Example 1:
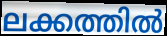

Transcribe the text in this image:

ലക്കത്തിൽ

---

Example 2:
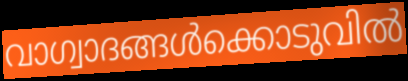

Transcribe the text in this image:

വാഗ്വാദങ്ങൾക്കൊടുവിൽ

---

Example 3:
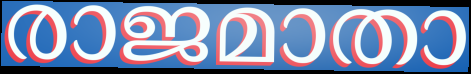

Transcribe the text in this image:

രാജമാതാ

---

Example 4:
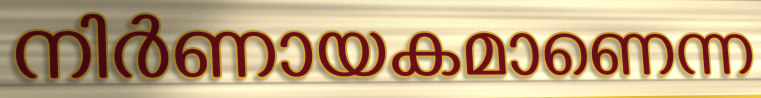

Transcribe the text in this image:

നിർണായകമാണെന്ന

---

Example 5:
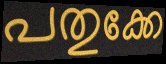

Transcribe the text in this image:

പതുക്കേ